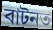
বাটনত